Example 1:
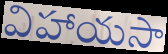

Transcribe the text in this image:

విహాయసా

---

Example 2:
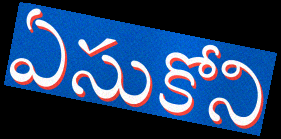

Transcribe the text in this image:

ఏసుకోని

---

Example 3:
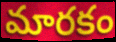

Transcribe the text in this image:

మారకం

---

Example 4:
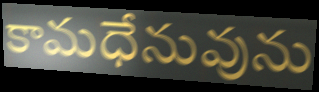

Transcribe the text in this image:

కామధేనువును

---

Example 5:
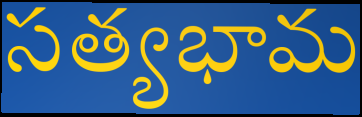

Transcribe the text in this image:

సత్యభామ